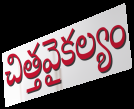
చిత్తవైకల్యం